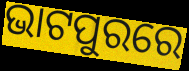
ଭାଟପୁରରେ